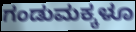
ಗಂಡುಮಕ್ಕಳೂ